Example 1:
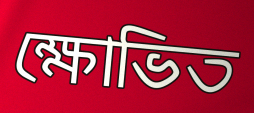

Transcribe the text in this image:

ক্ষোভিত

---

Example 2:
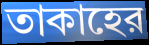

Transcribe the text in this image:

তাকাহের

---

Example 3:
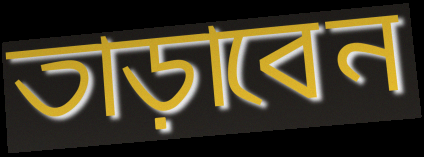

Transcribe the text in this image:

তাড়াবেন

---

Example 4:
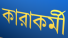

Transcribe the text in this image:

কারাকর্মী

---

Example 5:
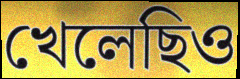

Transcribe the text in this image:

খেলেছিও